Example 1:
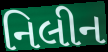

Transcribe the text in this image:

નિલીન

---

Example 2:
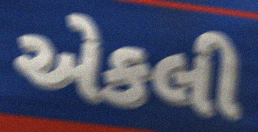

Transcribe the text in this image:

એકલી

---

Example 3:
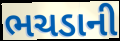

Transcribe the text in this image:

ભચડાની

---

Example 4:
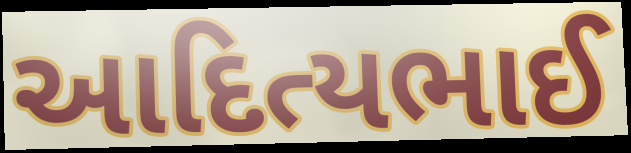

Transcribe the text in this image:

આદિત્યભાઈ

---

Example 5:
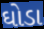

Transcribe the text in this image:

ઘોડા